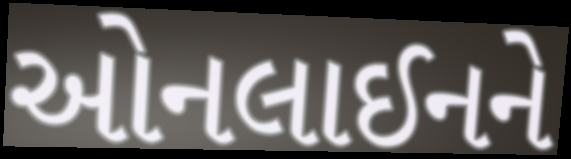
ઓનલાઈનને